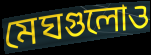
মেঘগুলোও